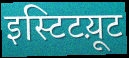
इस्टिटय़ूट